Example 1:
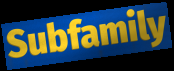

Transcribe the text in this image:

Subfamily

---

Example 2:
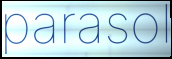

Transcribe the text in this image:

parasol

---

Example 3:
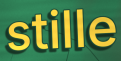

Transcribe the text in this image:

stille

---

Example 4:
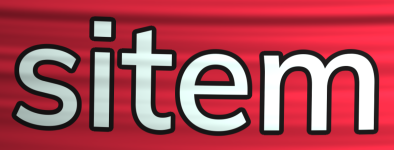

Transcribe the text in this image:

sitem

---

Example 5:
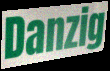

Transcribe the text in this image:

Danzig